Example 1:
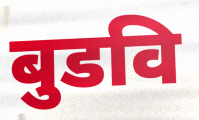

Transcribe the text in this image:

बुडवि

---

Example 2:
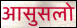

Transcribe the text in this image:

आसुसलो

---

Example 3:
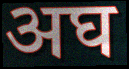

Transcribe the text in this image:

अघ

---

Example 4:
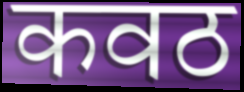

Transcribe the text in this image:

कवठ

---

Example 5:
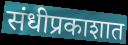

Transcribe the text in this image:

संधीप्रकाशात